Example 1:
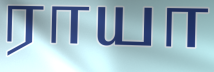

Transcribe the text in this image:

ராயா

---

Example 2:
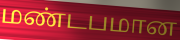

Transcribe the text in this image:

மண்டபமான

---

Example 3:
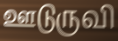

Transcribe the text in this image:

ஊடுருவி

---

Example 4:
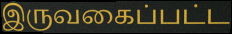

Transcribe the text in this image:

இருவகைப்பட்ட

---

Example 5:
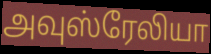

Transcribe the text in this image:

அவுஸ்ரேலியா